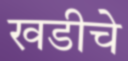
खडीचे